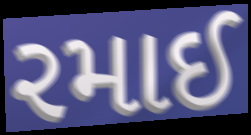
રમાઈ